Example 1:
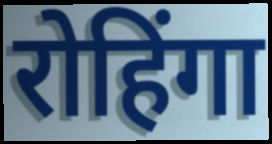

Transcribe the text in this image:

रोहिंगा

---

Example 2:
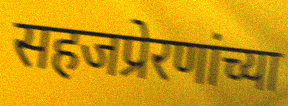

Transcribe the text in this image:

सहजप्रेरणांच्या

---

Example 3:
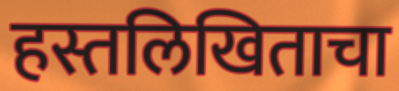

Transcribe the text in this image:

हस्तलिखिताचा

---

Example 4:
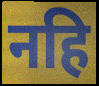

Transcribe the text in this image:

नहि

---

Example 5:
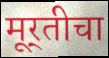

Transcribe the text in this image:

मूर्तीचा